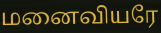
மனைவியரே